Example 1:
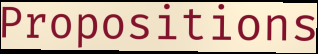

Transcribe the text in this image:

Propositions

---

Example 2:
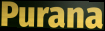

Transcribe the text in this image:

Purana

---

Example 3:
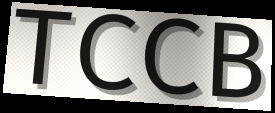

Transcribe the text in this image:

TCCB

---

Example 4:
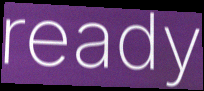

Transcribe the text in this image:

ready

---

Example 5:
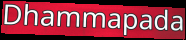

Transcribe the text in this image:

Dhammapada